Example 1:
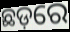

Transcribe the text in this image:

ଛଡ଼ରେ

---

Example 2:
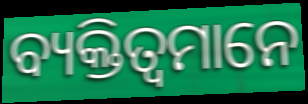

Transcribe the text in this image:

ବ୍ୟକ୍ତିତ୍ୱମାନେ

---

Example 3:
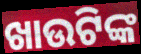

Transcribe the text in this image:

ଖାଉଟିଙ୍କ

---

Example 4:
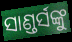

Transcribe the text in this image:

ସାଣ୍ଡର୍ସଙ୍କୁ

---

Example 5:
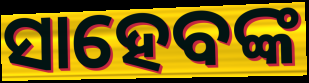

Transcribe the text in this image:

ସାହେବଙ୍କ